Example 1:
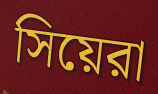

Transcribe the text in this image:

সিয়েরা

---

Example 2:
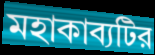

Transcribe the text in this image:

মহাকাব্যটির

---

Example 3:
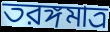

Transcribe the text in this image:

তরঙ্গমাত্র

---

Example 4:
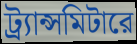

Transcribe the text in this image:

ট্র্যান্সমিটারে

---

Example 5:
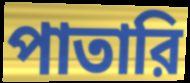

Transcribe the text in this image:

পাতারি